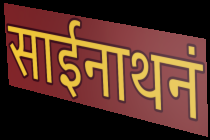
साईनाथनं